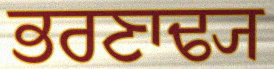
ਭਰਣਾਢ੍ਯ